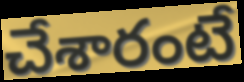
చేశారంటే